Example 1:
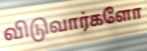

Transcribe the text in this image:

விடுவார்களோ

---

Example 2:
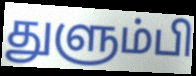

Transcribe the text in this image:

துளும்பி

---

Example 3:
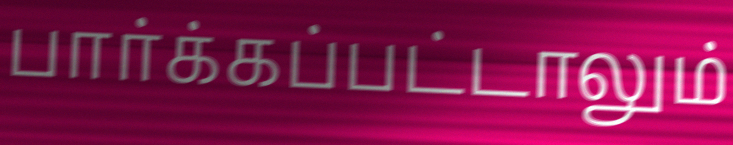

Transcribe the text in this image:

பார்க்கப்பட்டாலும்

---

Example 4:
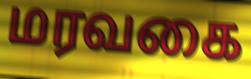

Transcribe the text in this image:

மரவகை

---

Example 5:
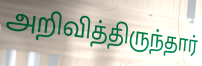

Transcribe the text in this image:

அறிவித்திருந்தார்